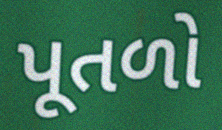
પૂતળો